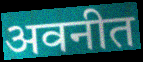
अवनीत